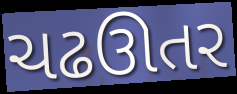
ચઢઊતર